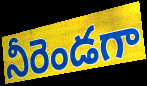
నీరెండగా